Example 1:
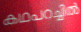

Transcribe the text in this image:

കഥപറച്ചിൽ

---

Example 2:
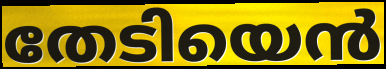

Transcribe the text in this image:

തേടിയെൻ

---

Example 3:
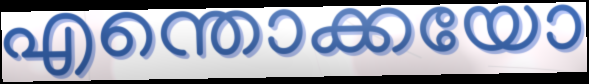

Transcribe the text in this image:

എന്തൊക്കയോ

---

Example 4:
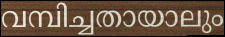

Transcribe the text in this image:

വമ്പിച്ചതായാലും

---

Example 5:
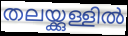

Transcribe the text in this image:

തലയ്ക്കുള്ളിൽ